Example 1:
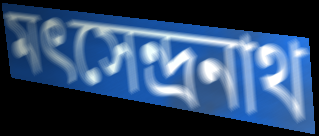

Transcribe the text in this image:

মৎসেন্দ্রনাথ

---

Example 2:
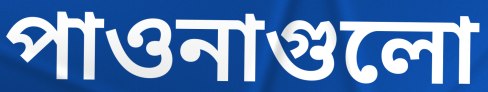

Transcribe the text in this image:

পাওনাগুলো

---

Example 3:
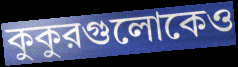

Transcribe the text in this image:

কুকুরগুলোকেও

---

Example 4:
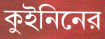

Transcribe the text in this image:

কুইনিনের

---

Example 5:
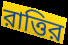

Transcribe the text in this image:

রাত্তির